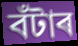
বঁটাৰ